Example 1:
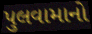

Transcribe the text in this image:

પુલવામાનો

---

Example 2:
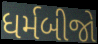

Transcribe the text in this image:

ધર્મબીજો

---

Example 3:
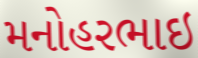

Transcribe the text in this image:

મનોહરભાઇ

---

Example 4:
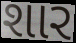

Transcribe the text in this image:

શાર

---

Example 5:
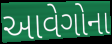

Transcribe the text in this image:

આવેગોના